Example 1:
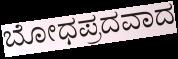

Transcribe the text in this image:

ಬೋಧಪ್ರದವಾದ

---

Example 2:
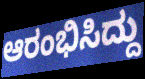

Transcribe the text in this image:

ಆರಂಭಿಸಿದ್ದು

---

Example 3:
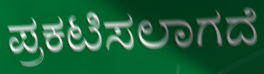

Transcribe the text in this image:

ಪ್ರಕಟಿಸಲಾಗದೆ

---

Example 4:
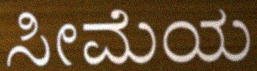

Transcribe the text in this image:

ಸೀಮೆಯ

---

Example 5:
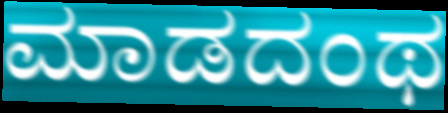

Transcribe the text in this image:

ಮಾಡದಂಥ